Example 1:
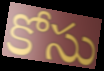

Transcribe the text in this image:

కోసు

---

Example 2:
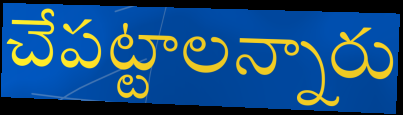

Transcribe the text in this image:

చేపట్టాలన్నారు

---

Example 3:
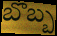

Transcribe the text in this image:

బొబ్బ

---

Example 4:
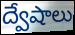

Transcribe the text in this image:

ద్వేషాలు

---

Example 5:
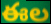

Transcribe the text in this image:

ఈల